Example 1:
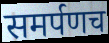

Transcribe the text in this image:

समर्पणच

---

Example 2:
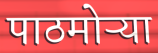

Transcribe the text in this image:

पाठमोऱ्या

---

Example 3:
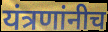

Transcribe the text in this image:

यंत्रणांनीच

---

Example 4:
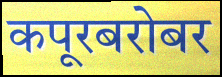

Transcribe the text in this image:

कपूरबरोबर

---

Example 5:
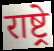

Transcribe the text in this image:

राष्ट्रे